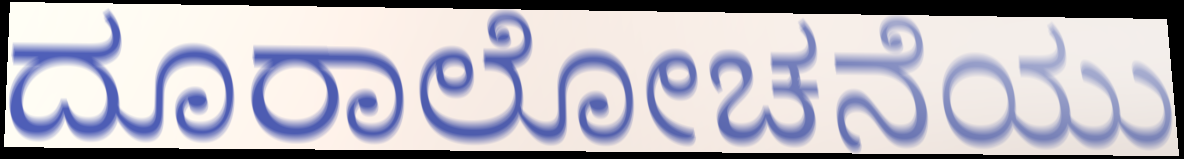
ದೂರಾಲೋಚನೆಯು